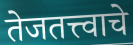
तेजतत्त्वाचे